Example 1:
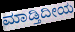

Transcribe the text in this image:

ಮಾಡ್ತಿದೀಯ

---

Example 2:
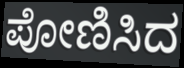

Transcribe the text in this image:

ಪೋಣಿಸಿದ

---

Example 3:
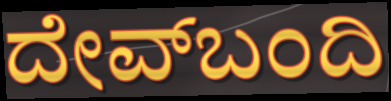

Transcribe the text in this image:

ದೇವ್‌ಬಂದಿ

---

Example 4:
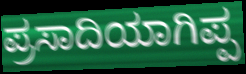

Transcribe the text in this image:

ಪ್ರಸಾದಿಯಾಗಿಪ್ಪ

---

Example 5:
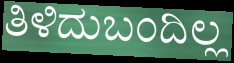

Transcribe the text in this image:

ತಿಳಿದುಬಂದಿಲ್ಲ